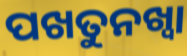
ପଖତୁନଖ୍ୱା